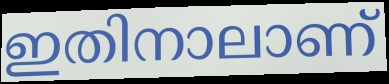
ഇതിനാലാണ്